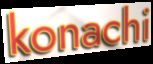
konachi